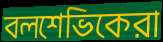
বলশেভিকেরা